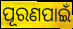
ପୂରଣପାଇଁ